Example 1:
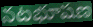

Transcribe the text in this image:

నటభూషణ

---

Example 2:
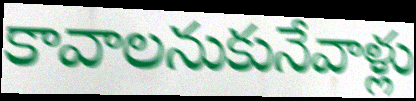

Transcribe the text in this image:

కావాలనుకునేవాళ్లు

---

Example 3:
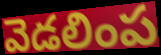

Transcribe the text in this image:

వెడలింప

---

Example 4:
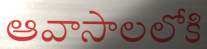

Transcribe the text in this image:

ఆవాసాలలోకి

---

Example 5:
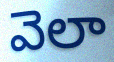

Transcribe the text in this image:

వెలా